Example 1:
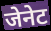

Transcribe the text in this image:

जेनेट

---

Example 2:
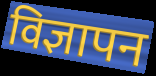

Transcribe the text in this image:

विज्ञापन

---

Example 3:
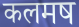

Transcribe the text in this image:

कलमष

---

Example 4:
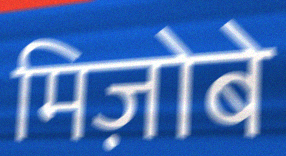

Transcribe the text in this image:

मिज़ोबे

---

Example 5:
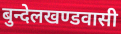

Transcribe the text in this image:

बुन्देलखण्डवासी